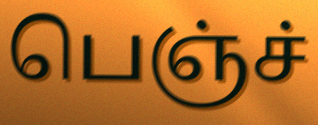
பெஞ்ச்